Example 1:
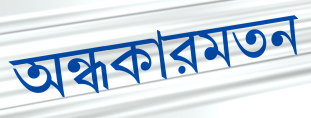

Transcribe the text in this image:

অন্ধকারমতন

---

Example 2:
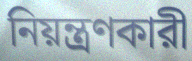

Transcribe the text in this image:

নিয়ন্ত্রণকারী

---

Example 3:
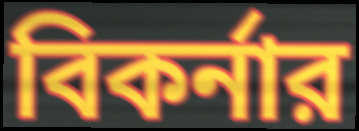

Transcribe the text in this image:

বিকর্নার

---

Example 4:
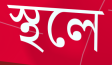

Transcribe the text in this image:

স্থলে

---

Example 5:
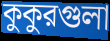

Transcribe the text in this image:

কুকুরগুলা